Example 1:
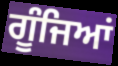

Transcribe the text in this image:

ਗੂੰਜਿਆਂ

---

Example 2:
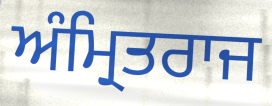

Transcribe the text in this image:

ਅੰਮ੍ਰਿਤਰਾਜ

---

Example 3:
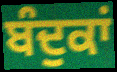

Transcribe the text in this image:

ਬੰਦੁਕਾਂ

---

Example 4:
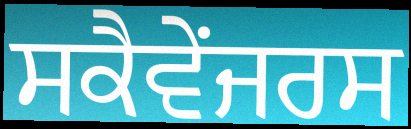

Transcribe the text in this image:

ਸਕੈਵੇਂਜਰਸ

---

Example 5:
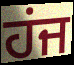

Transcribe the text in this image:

ਹਂਜ